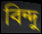
বিন্দু